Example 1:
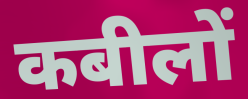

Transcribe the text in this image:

कबीलों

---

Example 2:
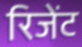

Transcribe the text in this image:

रिजेंट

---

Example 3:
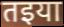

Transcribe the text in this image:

तइया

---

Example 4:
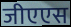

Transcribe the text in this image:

जीएएस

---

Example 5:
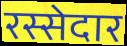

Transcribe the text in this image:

रस्सेदार